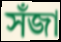
সঁজা